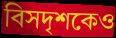
বিসদৃশকেও